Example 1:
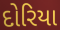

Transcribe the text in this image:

દોરિયા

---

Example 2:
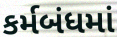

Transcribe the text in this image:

કર્મબંધમાં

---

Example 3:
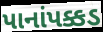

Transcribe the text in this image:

પાનાંપક્કડ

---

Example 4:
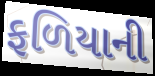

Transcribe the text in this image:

ફળિયાની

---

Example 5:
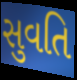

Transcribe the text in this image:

સુવતિ